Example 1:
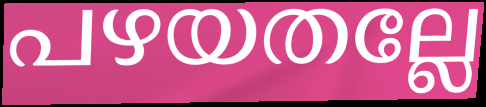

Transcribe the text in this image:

പഴയതല്ലേ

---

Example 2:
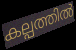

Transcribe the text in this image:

കല്പത്തിൽ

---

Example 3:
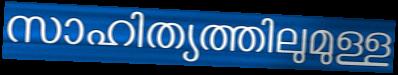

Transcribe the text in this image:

സാഹിത്യത്തിലുമുള്ള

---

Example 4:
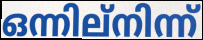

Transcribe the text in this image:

ഒന്നില്നിന്ന്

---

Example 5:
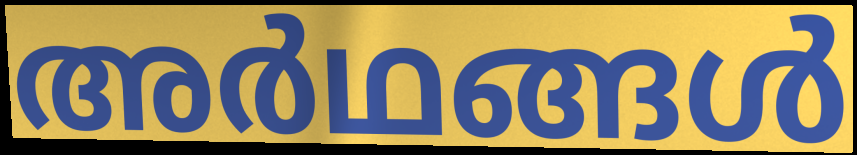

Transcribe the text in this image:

അർഥങ്ങൾ